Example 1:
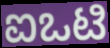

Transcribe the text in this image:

ಐಒಟಿ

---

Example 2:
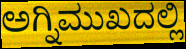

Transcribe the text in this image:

ಅಗ್ನಿಮುಖದಲ್ಲಿ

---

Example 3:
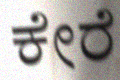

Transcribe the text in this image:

ಕೇರೆ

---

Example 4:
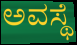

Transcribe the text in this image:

ಅವಸ್ಥೆ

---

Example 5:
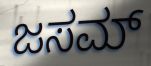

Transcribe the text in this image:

ಜಸಮ್